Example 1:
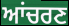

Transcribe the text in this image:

ਆਂਚਰਣ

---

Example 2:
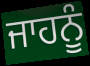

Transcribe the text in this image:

ਜਾਹਨੂੰ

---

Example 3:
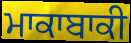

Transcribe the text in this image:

ਮਾਕਾਬਾਕੀ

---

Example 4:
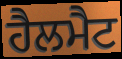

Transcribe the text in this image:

ਹੈਲਮੈਟ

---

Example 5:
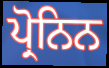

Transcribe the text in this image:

ਪ੍ਰੋਨਿਨ